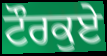
ਟੌਰਕੁਏ